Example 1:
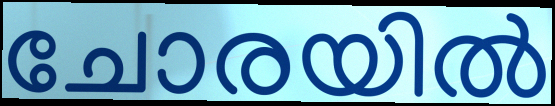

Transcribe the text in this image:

ചോരയിൽ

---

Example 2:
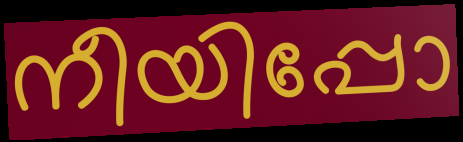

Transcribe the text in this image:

നീയിപ്പോ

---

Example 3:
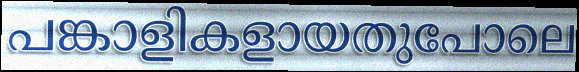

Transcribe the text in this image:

പങ്കാളികളായതുപോലെ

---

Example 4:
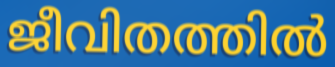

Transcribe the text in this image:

ജീവിതത്തിൽ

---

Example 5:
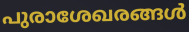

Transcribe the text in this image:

പുരാശേഖരങ്ങൾ